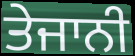
ਤੇਜਾਨੀ